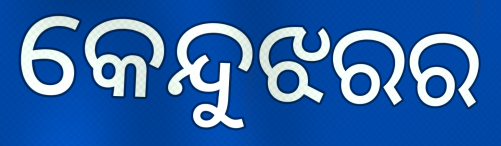
କେନ୍ଦୁଝରର